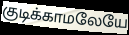
குடிக்காமலேயே